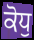
ਕੋਧੁ